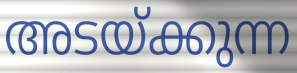
അടയ്ക്കുന്ന